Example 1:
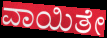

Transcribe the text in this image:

ವಾಯಿತೇ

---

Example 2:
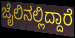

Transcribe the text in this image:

ಜೈಲಿನಲ್ಲಿದ್ದಾರೆ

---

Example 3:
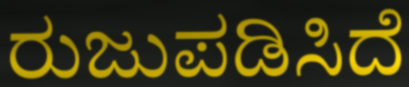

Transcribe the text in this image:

ರುಜುಪಡಿಸಿದೆ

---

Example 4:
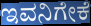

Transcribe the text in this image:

ಇವನಿಗೇಕೆ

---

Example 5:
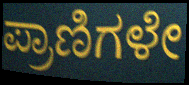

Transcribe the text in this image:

ಪ್ರಾಣಿಗಳೇ